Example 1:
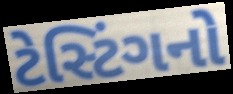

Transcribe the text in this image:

ટેસ્ટિંગનો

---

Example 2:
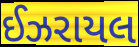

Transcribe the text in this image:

ઈઝરાયલ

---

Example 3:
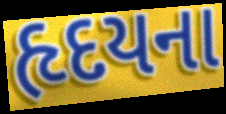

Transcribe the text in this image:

હૃદયના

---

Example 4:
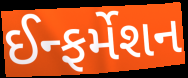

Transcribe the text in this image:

ઈન્ફર્મેશન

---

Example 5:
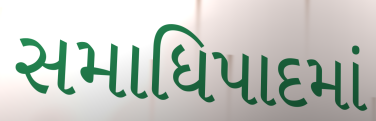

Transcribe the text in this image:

સમાધિપાદમાં